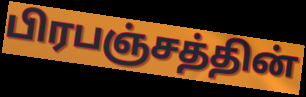
பிரபஞ்சத்தின்